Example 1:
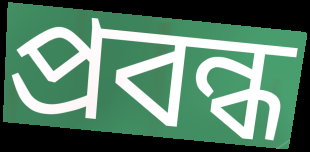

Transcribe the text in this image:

প্রবন্ধ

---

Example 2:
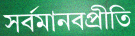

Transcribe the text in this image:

সর্বমানবপ্রীতি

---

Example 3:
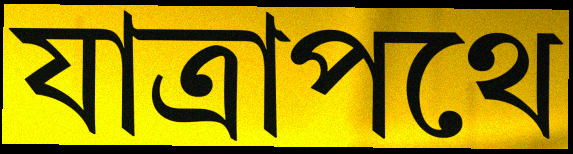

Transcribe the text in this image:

যাত্রাপথে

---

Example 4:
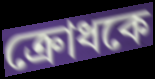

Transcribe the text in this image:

ক্রোধকে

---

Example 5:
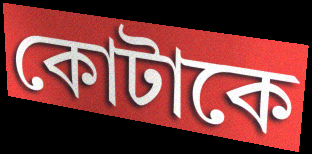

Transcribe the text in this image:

কোটাকে